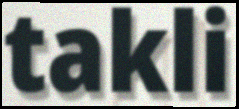
takli